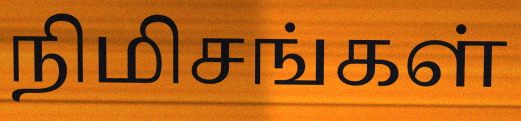
நிமிசங்கள்